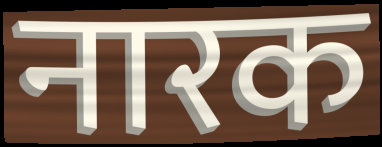
नारक